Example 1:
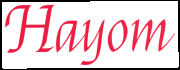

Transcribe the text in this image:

Hayom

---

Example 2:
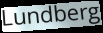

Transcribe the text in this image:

Lundberg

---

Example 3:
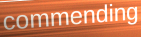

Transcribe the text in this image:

commending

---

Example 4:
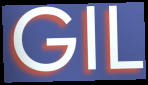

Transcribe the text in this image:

GIL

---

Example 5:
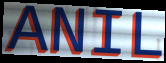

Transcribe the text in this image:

ANIL